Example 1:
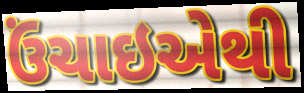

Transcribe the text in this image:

ઉંચાઇએથી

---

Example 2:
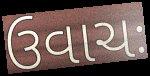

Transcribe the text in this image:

ઉવાચઃ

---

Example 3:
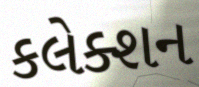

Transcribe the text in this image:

કલેક્શન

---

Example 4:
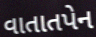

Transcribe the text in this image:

વાતાતપેન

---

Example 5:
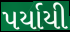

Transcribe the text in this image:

પર્યાયી